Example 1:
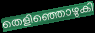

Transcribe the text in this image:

തെളിഞ്ഞൊഴുകി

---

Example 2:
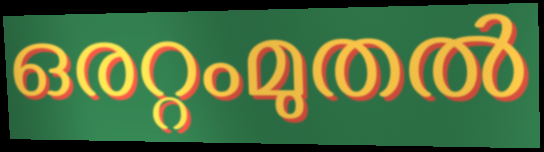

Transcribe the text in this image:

ഒരറ്റംമുതൽ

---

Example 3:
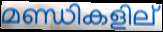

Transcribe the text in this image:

മണ്ഡികളില്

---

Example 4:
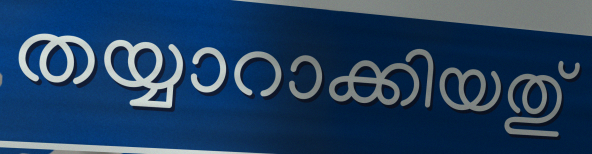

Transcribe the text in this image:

തയ്യാറാക്കിയതു്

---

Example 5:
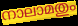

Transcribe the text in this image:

നാലാമതും